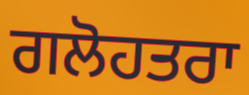
ਗਲੋਹਤਰਾ